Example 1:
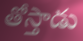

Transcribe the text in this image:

తోస్తాడు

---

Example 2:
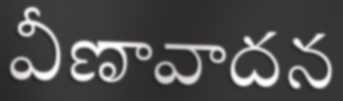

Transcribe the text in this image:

వీణావాదన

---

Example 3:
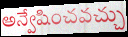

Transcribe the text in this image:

అన్వేషించవచ్చు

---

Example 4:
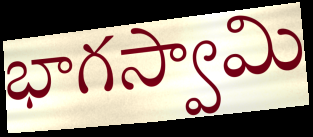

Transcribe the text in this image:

భాగస్వామి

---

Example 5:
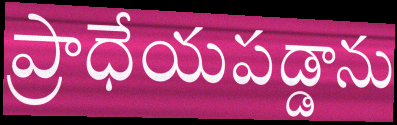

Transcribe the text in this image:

ప్రాధేయపడ్డాను